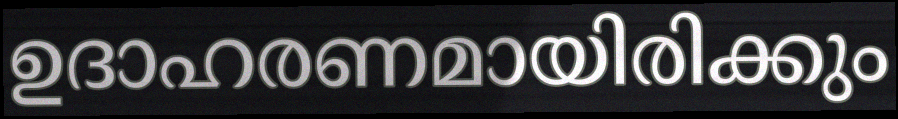
ഉദാഹരണമായിരിക്കും